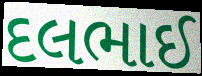
દલભાઈ